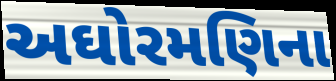
અઘોરમણિના